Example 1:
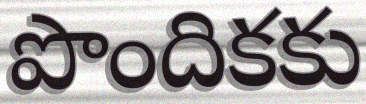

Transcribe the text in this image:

పొందికకు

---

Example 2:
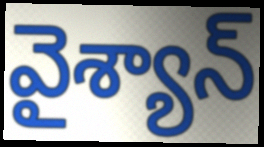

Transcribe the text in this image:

వైశ్యాన్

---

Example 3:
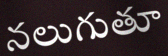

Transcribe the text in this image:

నలుగుతూ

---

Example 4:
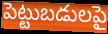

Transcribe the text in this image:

పెట్టుబడులపై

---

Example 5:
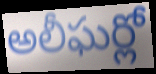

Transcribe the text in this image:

అలీఘర్లో